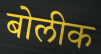
बोलीक